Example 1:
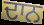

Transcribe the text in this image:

ਦਾਨ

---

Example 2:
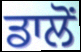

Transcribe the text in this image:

ਡਾਲੋਂ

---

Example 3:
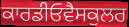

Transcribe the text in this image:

ਕਾਰਡੀਓਵੈਸਕੁਲਰ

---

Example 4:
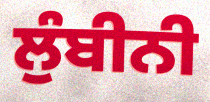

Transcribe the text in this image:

ਲੁੰਬੀਨੀ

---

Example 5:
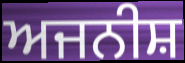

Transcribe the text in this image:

ਅਜਨੀਸ਼